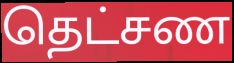
தெட்சண